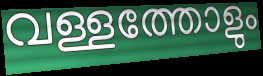
വള്ളത്തോളും